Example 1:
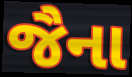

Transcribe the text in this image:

જૈના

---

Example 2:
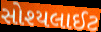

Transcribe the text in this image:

સોશ્યલાઈટ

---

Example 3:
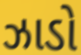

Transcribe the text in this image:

ઝાડો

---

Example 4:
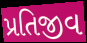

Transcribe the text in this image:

પ્રતિજીવ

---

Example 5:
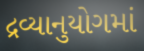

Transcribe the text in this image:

દ્રવ્યાનુયોગમાં